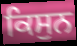
ਕਿਸੁਨ